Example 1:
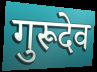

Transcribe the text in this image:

गुरूदेव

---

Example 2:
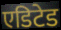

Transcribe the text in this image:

एडिटेड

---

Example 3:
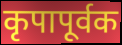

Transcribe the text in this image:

कृपापूर्वक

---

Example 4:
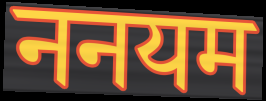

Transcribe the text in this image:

ननयम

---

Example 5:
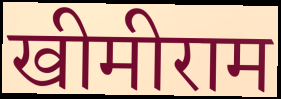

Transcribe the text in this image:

खीमीराम